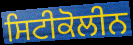
ਸਿਟੀਕੋਲੀਨ